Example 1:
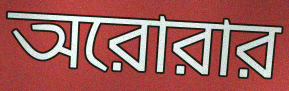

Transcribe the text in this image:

অরোরার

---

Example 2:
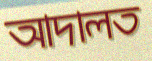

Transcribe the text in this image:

আদালত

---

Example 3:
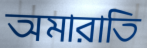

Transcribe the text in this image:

অমারাতি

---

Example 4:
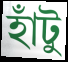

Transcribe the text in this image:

হাঁটু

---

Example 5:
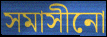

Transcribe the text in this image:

সমাসীনো